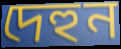
দেহুন